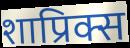
शाप्रिक्स